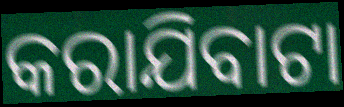
କରାଯିବାଟା